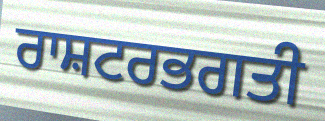
ਰਾਸ਼ਟਰਭਗਤੀ